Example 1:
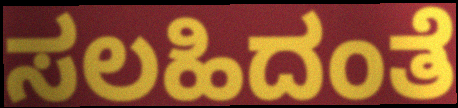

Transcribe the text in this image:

ಸಲಹಿದಂತೆ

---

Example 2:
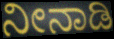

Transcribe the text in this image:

ನೀನಾಡಿ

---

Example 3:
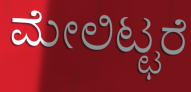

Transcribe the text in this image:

ಮೇಲಿಟ್ಟರೆ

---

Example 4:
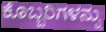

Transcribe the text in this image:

ಕೊಬ್ಬರಿಗಳನ್ನು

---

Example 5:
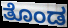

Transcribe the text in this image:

ತೊಂಡ